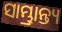
ସାମ୍ଭ୍ରାନ୍ତ୍ୟ